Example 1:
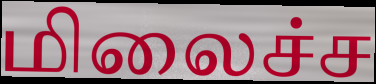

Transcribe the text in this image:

மிலைச்ச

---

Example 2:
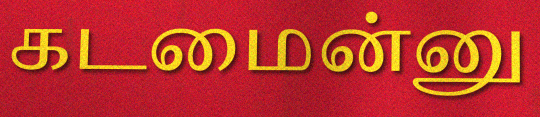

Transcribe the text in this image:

கடமைன்னு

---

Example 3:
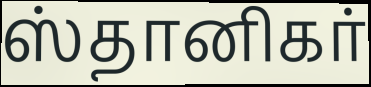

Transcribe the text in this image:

ஸ்தானிகர்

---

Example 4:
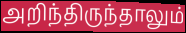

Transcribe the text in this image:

அறிந்திருந்தாலும்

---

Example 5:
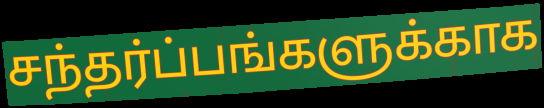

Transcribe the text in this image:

சந்தர்ப்பங்களுக்காக